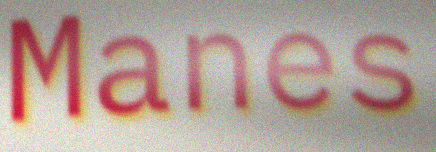
Manes